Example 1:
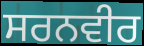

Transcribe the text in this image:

ਸਰਨਵੀਰ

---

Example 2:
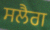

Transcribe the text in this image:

ਸਲੈਗ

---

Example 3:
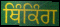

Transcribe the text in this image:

ਥਿੰਕਿੰਗ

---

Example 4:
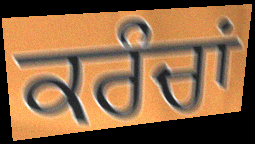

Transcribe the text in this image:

ਕਰੰਚਾਂ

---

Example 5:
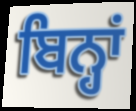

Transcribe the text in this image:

ਬਿਨ੍ਹਾਂ